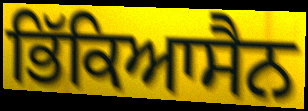
ਭਿੱਕਿਆਸੈਨ